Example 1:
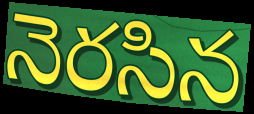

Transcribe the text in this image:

నెరసిన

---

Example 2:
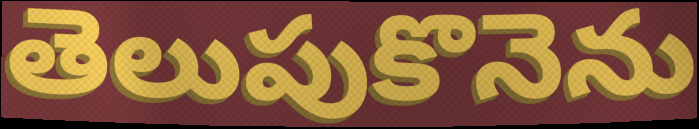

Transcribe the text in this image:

తెలుపుకొనెను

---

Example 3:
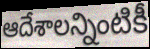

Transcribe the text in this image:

ఆదేశాలన్నింటికీ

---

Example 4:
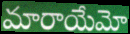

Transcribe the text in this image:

మారాయేమో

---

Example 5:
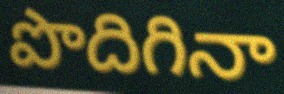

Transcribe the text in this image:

పొదిగినా